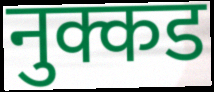
नुक्कड